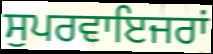
ਸੁਪਰਵਾਇਜਰਾਂ